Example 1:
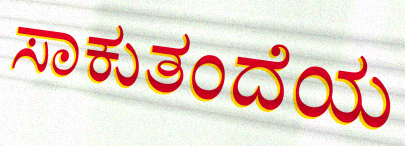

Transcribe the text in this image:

ಸಾಕುತಂದೆಯ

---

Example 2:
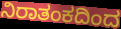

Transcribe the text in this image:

ನಿರಾತಂಕದಿಂದ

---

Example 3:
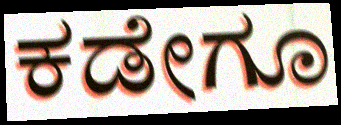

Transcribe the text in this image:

ಕಡೇಗೂ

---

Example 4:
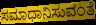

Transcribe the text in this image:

ಸಮಾಧಾನಿಸುವಂತೆ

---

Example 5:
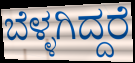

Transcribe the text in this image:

ಬೆಳ್ಳಗಿದ್ದರೆ